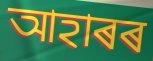
আহাৰৰ